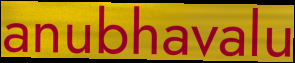
anubhavalu